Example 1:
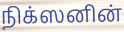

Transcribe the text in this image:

நிக்ஸனின்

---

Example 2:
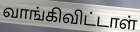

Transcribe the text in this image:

வாங்கிவிட்டாள்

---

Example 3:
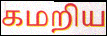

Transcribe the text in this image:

கமறிய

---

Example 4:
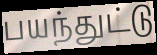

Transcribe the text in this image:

பயந்துட்டு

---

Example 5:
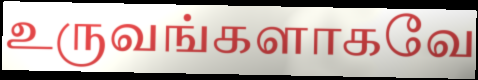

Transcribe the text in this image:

உருவங்களாகவே